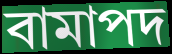
বামাপদ